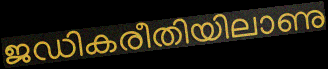
ജഡികരീതിയിലാണു